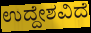
ಉದ್ದೇಶವಿದೆ